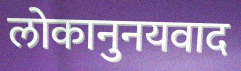
लोकानुनयवाद